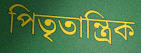
পিতৃতান্ত্ৰিক